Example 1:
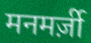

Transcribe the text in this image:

मनमर्ज़ी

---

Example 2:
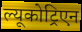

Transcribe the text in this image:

ल्यूकोट्रिएन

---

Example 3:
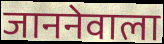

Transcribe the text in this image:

जाननेवाला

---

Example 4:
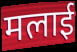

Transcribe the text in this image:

मलाई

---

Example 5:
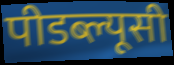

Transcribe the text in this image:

पीडब्ल्यूसी